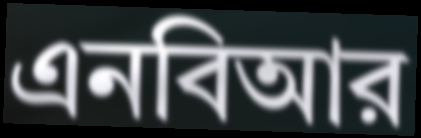
এনবিআর